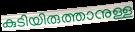
കുടിയിരുത്താനുള്ള